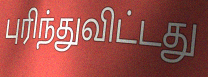
புரிந்துவிட்டது